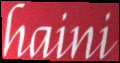
haini